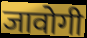
जावोगी